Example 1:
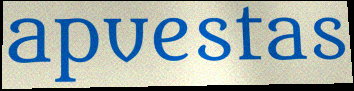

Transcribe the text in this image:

apuestas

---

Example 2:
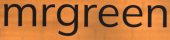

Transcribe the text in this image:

mrgreen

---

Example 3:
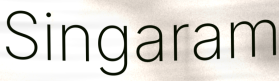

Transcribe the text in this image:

Singaram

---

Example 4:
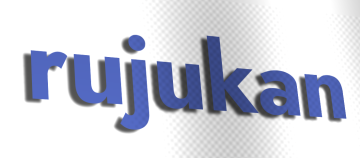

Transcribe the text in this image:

rujukan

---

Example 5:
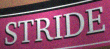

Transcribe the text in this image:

STRIDE